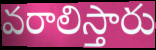
వరాలిస్తారు